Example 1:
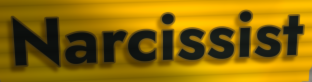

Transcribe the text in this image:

Narcissist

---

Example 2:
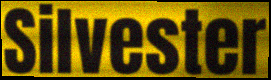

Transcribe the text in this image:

Silvester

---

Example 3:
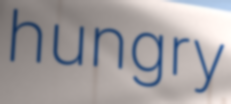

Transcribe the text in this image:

hungry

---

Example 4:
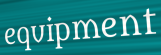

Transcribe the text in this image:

equipment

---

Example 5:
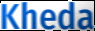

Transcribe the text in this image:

Kheda